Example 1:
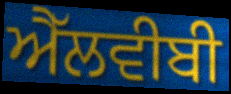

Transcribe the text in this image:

ਐੱਲਵੀਬੀ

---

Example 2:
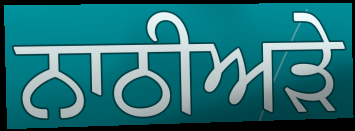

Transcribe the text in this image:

ਨਾਠੀਅੜੇ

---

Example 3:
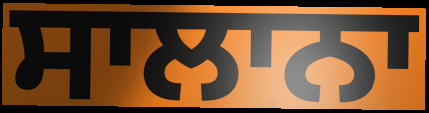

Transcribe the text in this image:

ਸਾਲਾਨਾ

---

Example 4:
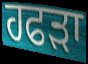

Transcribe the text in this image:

ਹਫੜਾ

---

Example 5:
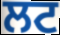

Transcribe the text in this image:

ਲਟ